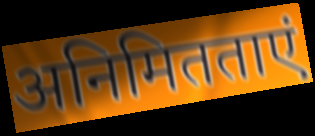
अनिमितताएं